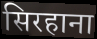
सिरहाना